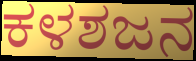
ಕಳಶಜನ